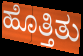
ಹೊತ್ತಿತು